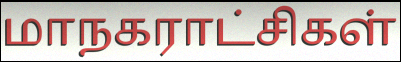
மாநகராட்சிகள்